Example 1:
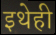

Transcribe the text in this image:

इथेही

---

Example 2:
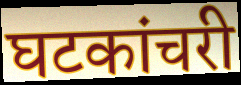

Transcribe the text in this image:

घटकांचरी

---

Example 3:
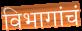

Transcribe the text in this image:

विभागांचं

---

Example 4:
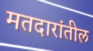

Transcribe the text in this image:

मतदारांतील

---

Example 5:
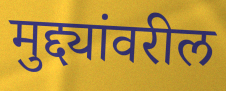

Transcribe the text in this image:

मुद्द्यांवरील